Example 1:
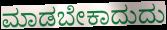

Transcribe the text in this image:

ಮಾಡಬೇಕಾದುದು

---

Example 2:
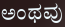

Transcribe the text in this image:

ಅಂಥವು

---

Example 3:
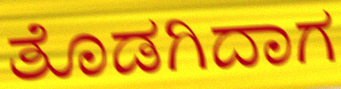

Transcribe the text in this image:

ತೊಡಗಿದಾಗ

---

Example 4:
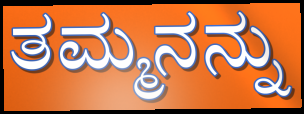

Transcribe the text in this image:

ತಮ್ಮನನ್ನು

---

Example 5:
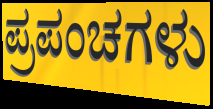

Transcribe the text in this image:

ಪ್ರಪಂಚಗಳು